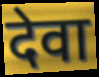
देवा